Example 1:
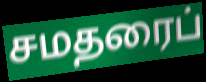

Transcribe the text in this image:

சமதரைப்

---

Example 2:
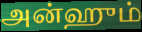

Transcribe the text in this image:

அன்ஹும்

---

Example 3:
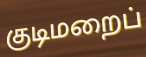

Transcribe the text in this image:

குடிமறைப்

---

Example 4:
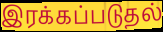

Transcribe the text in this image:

இரக்கப்படுதல்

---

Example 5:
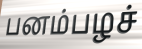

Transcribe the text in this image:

பனம்பழச்